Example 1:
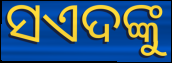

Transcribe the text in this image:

ସଏଦଙ୍କୁ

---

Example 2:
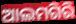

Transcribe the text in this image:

ଆଲମଗିରି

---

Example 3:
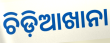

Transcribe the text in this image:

ଚିଡ଼ିଆଖାନା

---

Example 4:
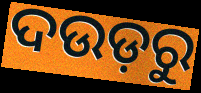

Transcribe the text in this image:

ଦଉଡ଼ରୁ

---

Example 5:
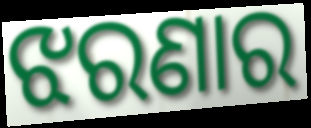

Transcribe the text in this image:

ଝରଣାର